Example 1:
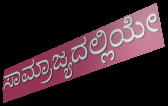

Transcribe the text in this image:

ಸಾಮ್ರಾಜ್ಯದಲ್ಲಿಯೇ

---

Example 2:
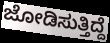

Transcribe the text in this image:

ಜೋಡಿಸುತ್ತಿದ್ದೆ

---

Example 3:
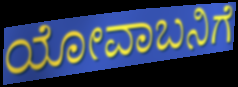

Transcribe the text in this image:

ಯೋವಾಬನಿಗೆ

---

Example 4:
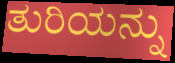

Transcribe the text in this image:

ತುರಿಯನ್ನು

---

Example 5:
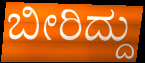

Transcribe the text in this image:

ಬೀರಿದ್ದು